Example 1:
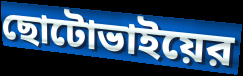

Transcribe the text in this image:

ছোটোভাইয়ের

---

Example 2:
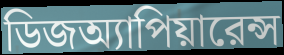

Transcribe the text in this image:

ডিজঅ্যাপিয়ারেন্স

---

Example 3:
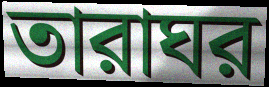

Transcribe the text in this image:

তারাঘর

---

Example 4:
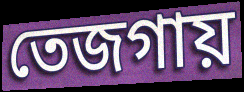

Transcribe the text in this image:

তেজগায়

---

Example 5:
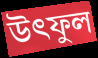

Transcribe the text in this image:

উৎফুল